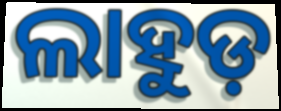
ଲାହୁଡ଼